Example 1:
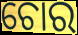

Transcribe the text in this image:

ଚୋର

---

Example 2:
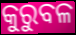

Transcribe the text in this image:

କୁରୁବଳ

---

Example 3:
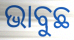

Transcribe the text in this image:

ଭାବୁଛ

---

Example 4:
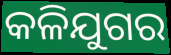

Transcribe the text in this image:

କଳିଯୁଗର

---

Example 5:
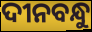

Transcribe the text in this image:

ଦୀନବନ୍ଧୁ